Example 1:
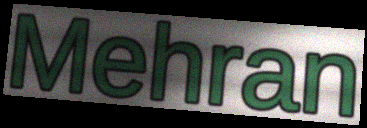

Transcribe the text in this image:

Mehran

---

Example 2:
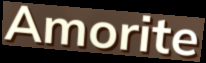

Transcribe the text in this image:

Amorite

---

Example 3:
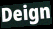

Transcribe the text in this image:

Deign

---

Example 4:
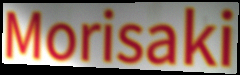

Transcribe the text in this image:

Morisaki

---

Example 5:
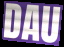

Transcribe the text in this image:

DAU